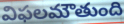
విఫలమౌతుంది